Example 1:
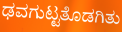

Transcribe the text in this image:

ಢವಗುಟ್ಟತೊಡಗಿತು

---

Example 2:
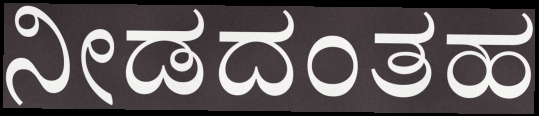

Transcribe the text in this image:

ನೀಡದಂತಹ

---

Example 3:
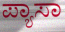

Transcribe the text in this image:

ಪ್ಯಾಸಾ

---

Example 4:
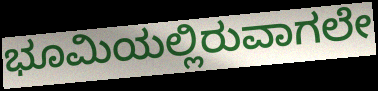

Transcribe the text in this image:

ಭೂಮಿಯಲ್ಲಿರುವಾಗಲೇ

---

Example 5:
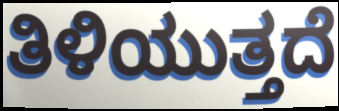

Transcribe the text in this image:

ತಿಳಿಯುತ್ತದೆ